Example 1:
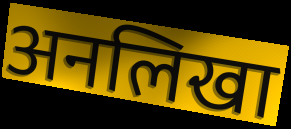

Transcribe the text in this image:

अनलिखा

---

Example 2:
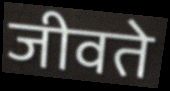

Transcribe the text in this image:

जीवते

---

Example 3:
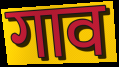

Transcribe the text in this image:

गाव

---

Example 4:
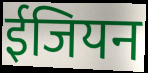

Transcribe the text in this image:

ईजियन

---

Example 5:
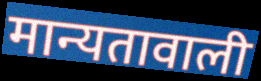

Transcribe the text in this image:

मान्यतावाली